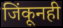
जिंकूनही